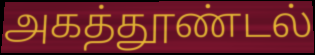
அகத்தூண்டல்